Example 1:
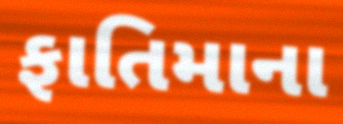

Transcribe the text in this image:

ફાતિમાના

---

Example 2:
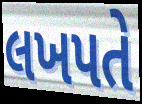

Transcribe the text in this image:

લખપતે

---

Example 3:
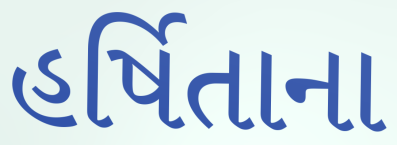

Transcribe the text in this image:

હર્ષિતાના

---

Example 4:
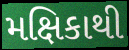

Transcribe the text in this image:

મક્ષિકાથી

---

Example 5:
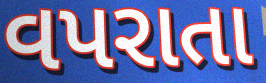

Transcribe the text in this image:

વપરાતા